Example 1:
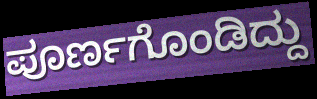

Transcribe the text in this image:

ಪೂರ್ಣಗೊಂಡಿದ್ದು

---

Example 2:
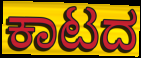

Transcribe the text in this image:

ಕಾಟದ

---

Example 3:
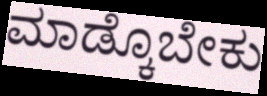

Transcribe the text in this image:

ಮಾಡ್ಕೊಬೇಕು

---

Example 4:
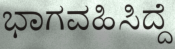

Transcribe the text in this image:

ಭಾಗವಹಿಸಿದ್ದೆ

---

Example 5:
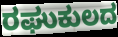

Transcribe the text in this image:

ರಘುಕುಲದ